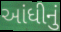
આંધીનું